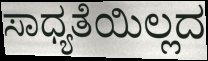
ಸಾಧ್ಯತೆಯಿಲ್ಲದ